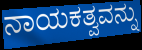
ನಾಯಕತ್ವವನ್ನು